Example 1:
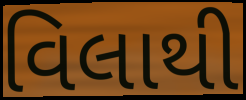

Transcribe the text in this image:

વિલાથી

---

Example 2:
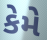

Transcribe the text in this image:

કેમે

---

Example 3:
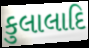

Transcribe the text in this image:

કુલાલાદિ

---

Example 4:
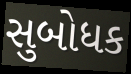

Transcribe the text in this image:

સુબોધક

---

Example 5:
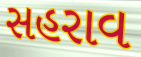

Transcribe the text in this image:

સહરાવ